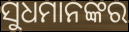
ସୁଧମାନଙ୍କର